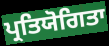
ਪ੍ਰਤਿਯੋਗਿਤਾ